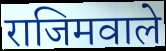
राजिमवाले